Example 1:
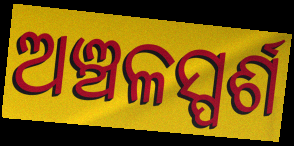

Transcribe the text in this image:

ଅଞ୍ଚଳସ୍ପର୍ଶ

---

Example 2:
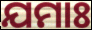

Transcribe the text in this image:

ଯମାଃ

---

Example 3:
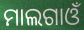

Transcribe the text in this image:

ମାଲଗାଓଁ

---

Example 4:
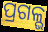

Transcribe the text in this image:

ପ୍ରଗଳ୍ଭ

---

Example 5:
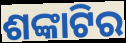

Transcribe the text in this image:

ଶଙ୍କାଟିର